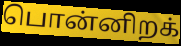
பொன்னிறக்